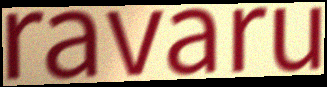
ravaru